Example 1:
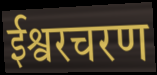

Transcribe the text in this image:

ईश्वरचरण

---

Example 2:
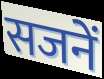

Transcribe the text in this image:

सजनें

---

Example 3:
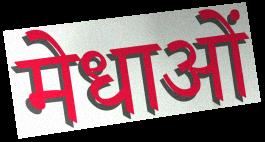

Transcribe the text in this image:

मेधाओं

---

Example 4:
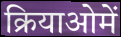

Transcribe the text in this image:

क्रियाओमें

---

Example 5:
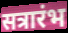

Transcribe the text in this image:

सत्रारंभ